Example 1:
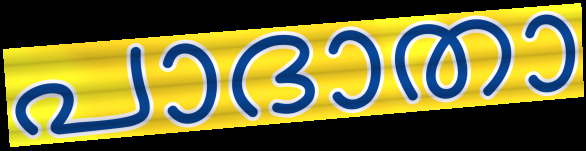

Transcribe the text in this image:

പാദാതാ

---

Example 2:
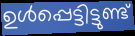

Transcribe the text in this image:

ഉൾപ്പെട്ടിട്ടുണ്ട്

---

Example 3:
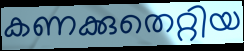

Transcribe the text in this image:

കണക്കുതെറ്റിയ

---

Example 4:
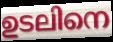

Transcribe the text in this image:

ഉടലിനെ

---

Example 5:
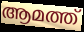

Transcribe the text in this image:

ആമത്ത്